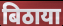
बिठाया